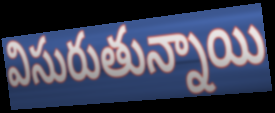
విసురుతున్నాయి